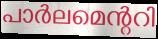
പാർലമെന്ററി